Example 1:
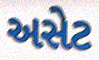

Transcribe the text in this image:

અસેટ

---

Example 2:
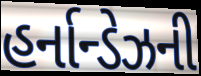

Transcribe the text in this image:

હર્નાન્ડેઝની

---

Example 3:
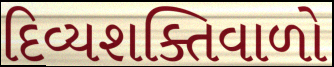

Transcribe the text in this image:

દિવ્યશક્તિવાળો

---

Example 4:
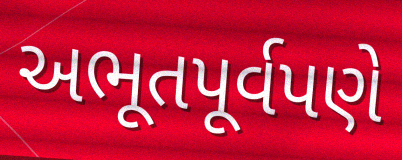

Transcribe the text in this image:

અભૂતપૂર્વપણે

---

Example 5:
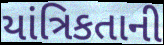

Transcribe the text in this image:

યાંત્રિકતાની